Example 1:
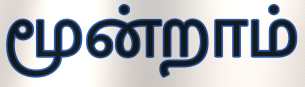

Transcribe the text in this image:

மூன்றாம்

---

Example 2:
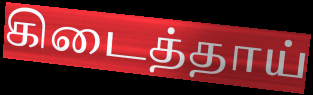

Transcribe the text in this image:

கிடைத்தாய்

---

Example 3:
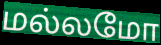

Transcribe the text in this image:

மல்லமோ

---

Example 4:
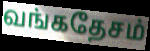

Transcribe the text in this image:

வங்கதேசம்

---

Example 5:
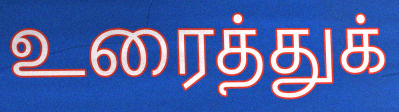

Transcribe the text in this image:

உரைத்துக்